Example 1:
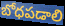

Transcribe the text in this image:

బోధపడాలి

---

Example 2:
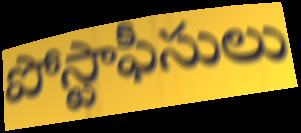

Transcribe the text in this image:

పోస్టాఫీసులు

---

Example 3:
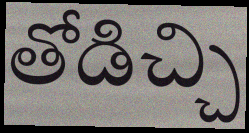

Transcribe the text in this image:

తోడిచ్చి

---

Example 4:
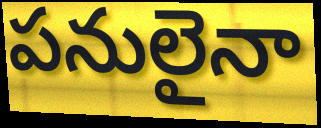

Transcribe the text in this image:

పనులైనా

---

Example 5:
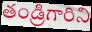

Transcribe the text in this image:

తండ్రిగారిని